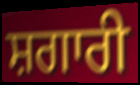
ਸ਼ਗਾਰੀ